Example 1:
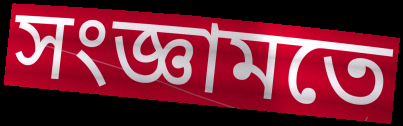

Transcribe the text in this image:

সংজ্ঞামতে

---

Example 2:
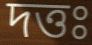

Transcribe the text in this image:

দত্তঃ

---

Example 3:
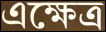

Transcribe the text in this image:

এক্ষেত্র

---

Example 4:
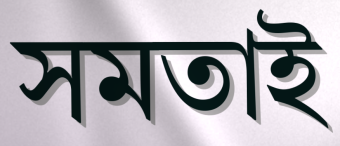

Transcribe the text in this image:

সমতাই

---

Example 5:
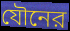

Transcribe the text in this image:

যৌনের